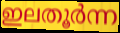
ഇലതൂർന്ന